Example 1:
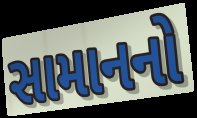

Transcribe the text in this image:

સામાનનો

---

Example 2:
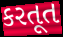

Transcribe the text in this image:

કરતૂત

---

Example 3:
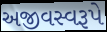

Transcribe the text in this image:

અજીવસ્વરૂપે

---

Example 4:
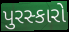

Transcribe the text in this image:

પુરસ્કારો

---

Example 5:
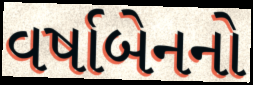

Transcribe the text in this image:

વર્ષાબેનનો